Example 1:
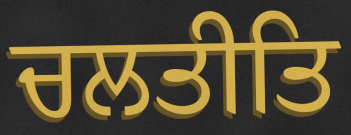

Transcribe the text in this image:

ਚਲਤੀਤਿ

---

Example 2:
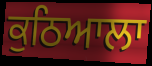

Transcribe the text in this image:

ਕੁਠਿਆਲਾ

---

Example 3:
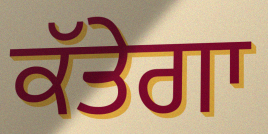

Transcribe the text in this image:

ਕੱਤੇਗਾ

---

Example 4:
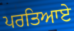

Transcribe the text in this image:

ਪਰਤਿਆਏ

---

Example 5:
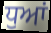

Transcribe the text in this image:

ਧੁਆਂ